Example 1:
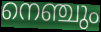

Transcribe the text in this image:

നെഞ്ചും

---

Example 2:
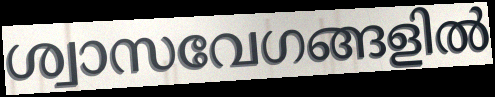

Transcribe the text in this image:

ശ്വാസവേഗങ്ങളിൽ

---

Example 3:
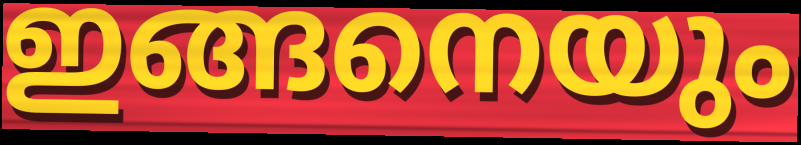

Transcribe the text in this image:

ഇങ്ങനെയും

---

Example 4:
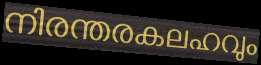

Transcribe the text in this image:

നിരന്തരകലഹവും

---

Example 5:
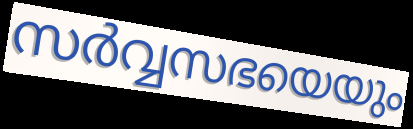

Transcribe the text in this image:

സർവ്വസഭയെയും